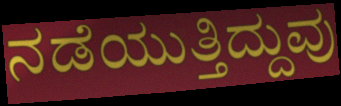
ನಡೆಯುತ್ತಿದ್ದುವು